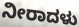
ನೀರಾದಳು